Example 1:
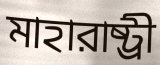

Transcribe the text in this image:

মাহারাষ্ট্রী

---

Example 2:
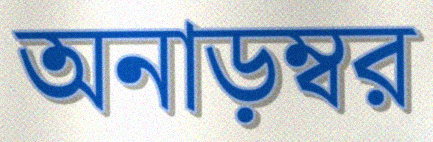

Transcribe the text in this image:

অনাড়ম্বর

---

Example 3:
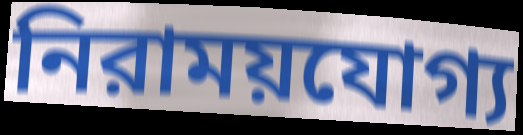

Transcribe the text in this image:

নিরাময়যোগ্য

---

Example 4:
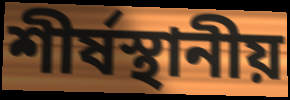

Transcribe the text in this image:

শীর্ষস্থানীয়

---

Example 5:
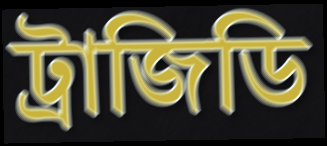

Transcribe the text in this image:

ট্রাজিডি